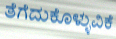
ತೆಗೆದುಕೊಳ್ಳುವಿಕೆ